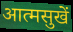
आत्मसुखें